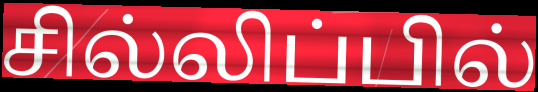
சில்லிப்பில்